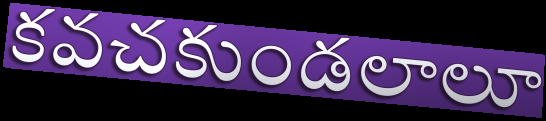
కవచకుండలాలూ